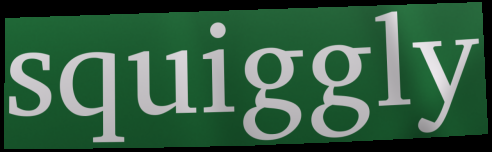
squiggly